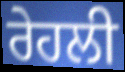
ਰੇਹਲੀ